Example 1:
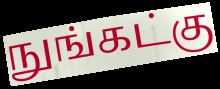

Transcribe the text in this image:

நுங்கட்கு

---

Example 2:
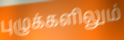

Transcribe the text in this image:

புழுக்களிலும்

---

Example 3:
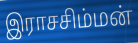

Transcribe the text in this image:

இராசசிம்மன்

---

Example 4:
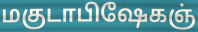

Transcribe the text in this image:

மகுடாபிஷேகஞ்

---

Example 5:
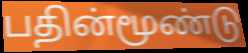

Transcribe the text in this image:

பதின்மூண்டு